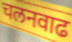
चलनवाढ